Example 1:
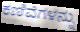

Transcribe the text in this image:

ಕಣಿವೆಗಳನ್ನು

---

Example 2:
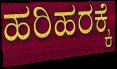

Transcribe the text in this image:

ಹರಿಹರಕ್ಕೆ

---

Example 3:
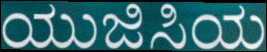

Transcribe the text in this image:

ಯುಜಿಸಿಯ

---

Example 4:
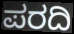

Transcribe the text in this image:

ಪರದಿ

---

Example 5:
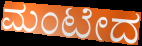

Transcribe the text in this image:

ಮಂಟೇದ